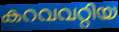
കറവവറ്റിയ